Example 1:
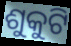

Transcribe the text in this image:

ଶୁକୁଟି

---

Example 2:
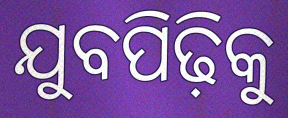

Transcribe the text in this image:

ଯୁବପିଢ଼ିକୁ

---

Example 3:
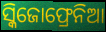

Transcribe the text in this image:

ସ୍କିଜୋଫ୍ରେନିଆ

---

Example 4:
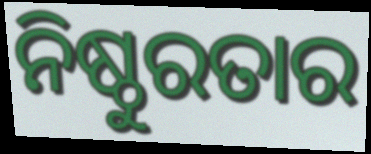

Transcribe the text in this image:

ନିଷ୍ଠୁରତାର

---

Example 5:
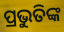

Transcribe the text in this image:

ପ୍ରଭୁତିଙ୍କ